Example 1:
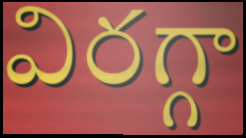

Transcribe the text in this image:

విరగ్గా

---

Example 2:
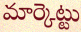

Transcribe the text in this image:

మార్కెట్టు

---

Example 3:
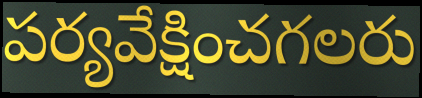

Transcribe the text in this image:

పర్యవేక్షించగలరు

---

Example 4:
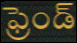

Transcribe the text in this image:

ఫ్రెండ్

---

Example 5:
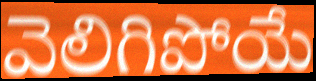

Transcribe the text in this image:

వెలిగిపోయే